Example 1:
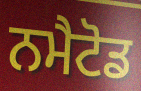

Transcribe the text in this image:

ਨਮੈਟੋਡ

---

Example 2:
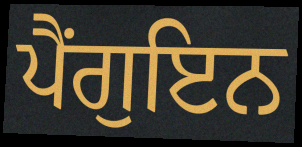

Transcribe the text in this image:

ਪੈਂਗੁਇਨ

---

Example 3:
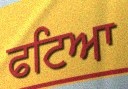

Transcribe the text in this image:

ਫਟਿਆ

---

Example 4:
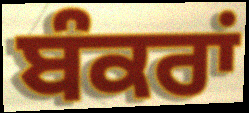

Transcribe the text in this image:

ਬੰਕਰਾਂ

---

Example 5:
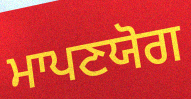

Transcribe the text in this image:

ਮਾਪਣਯੋਗ